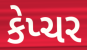
કેપ્ચર